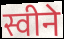
स्वीने